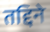
तद्दिने